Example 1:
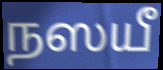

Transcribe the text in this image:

நஸயீ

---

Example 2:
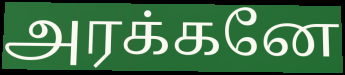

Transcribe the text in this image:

அரக்கனே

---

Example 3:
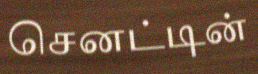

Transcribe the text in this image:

செனட்டின்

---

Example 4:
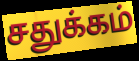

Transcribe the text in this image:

சதுக்கம்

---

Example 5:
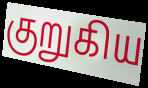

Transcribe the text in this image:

குறுகிய